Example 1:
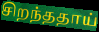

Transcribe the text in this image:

சிறந்ததாய்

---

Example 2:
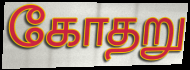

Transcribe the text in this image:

கோதறு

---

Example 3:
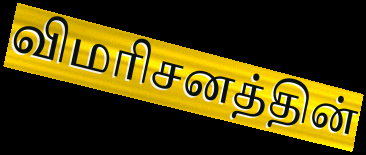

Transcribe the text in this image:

விமரிசனத்தின்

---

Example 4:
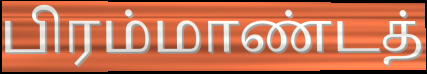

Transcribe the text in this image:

பிரம்மாண்டத்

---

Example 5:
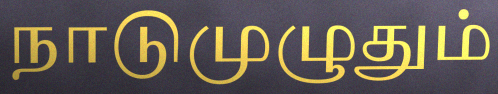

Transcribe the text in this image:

நாடுமுழுதும்